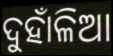
ଦୁହାଁଳିଆ